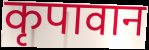
कृपावान